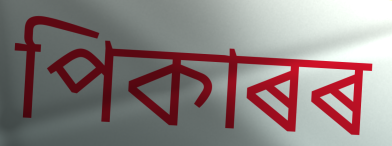
পিকাৰৰ